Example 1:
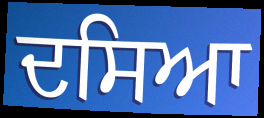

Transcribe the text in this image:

ਦਸਿਆ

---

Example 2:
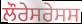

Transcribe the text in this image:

ਲੌਰੇਸਰੇਸਸ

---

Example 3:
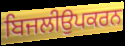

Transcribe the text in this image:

ਬਿਜਲੀਉਪਕਰਨ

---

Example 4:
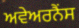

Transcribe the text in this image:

ਅਵੇਅਰਨੈਂਸ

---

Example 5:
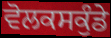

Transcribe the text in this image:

ਵੋਲਕਸਕੁੰਡੇ